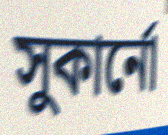
সুকার্নো